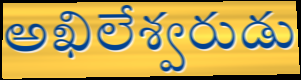
అఖిలేశ్వరుడు